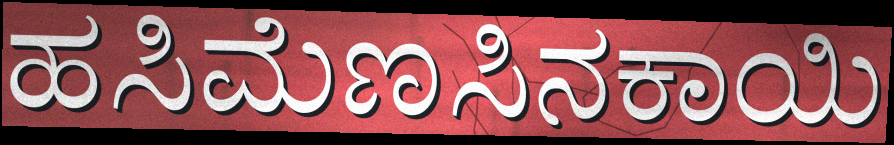
ಹಸಿಮೆಣಸಿನಕಾಯಿ